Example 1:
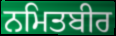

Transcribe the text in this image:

ਨਮਿਤਬੀਰ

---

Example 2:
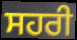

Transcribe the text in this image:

ਸਹਰੀ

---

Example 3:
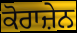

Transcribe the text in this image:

ਕੋਰਾਜ਼ੇਨ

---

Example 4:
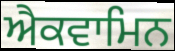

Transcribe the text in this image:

ਐਕਵਾਮਿਨ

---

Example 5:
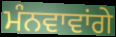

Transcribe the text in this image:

ਮੰਨਵਾਵਾਂਗੇ